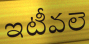
ఇటీవలె